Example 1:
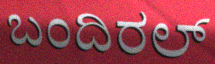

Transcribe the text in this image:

ಬಂದಿರಲ್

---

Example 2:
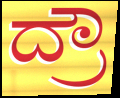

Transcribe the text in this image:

ದ್ರೌ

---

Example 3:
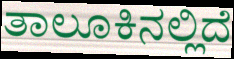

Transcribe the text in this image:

ತಾಲೂಕಿನಲ್ಲಿದೆ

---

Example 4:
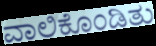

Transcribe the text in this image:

ವಾಲಿಕೊಂಡಿತು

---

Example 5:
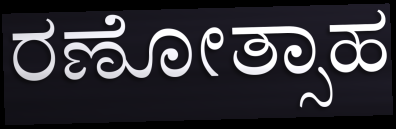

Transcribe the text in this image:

ರಣೋತ್ಸಾಹ